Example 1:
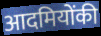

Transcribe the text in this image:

आदमियोंकी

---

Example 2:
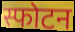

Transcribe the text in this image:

स्फोटन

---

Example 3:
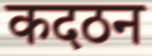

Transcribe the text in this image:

कदठन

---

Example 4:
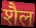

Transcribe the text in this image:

शैल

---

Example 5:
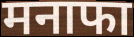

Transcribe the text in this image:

मनाफा